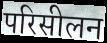
परिसीलन